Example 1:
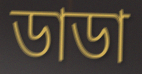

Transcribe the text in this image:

ডাডা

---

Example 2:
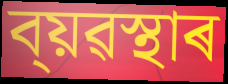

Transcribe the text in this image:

ব্য়ৱস্থাৰ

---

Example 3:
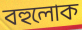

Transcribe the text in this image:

বহুলোক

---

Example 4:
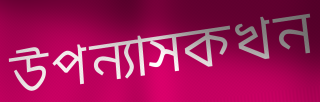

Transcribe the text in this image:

উপন্যাসকখন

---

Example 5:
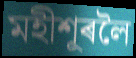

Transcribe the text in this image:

মহীশূৰলৈ